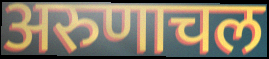
अरुणाचल